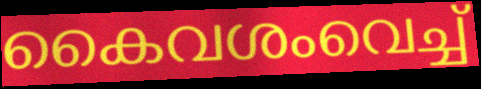
കൈവശംവെച്ച്